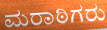
ಮರಾಠಿಗರು